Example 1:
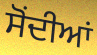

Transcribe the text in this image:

ਸੋਂਦੀਆਂ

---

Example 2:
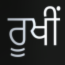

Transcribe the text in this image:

ਰੂਖੀਂ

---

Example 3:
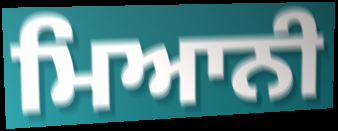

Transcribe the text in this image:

ਮਿਆਨੀ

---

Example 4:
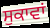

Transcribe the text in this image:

ਸੁਕਾਵਾਂ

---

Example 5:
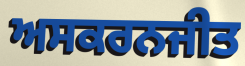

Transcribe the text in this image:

ਅਸਕਰਨਜੀਤ